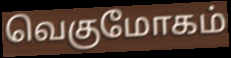
வெகுமோகம்